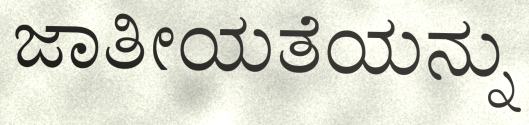
ಜಾತೀಯತೆಯನ್ನು